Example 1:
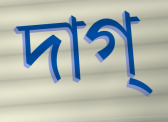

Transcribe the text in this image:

দাগ্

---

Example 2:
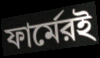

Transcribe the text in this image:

ফার্মেরই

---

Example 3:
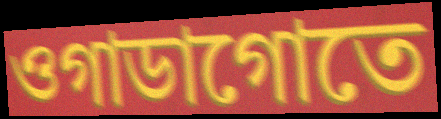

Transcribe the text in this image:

ওগাডাগোতে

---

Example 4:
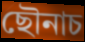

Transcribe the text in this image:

ছৌনাচ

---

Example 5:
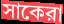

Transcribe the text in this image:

সাকেরা